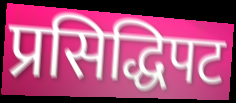
प्रसिद्धिपट